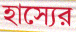
হাস্যের